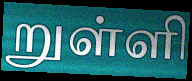
றுள்ளி